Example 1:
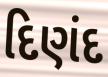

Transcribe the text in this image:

દિણંદ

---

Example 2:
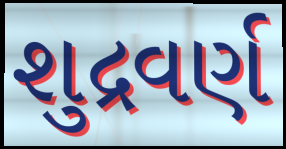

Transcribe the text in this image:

શુદ્રવર્ણ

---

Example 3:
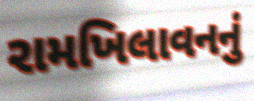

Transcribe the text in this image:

રામખિલાવનનું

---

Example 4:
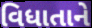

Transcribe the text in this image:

વિધાતાને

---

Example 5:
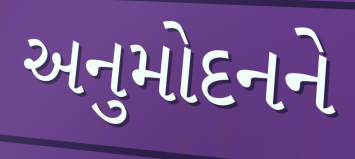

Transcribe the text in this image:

અનુમોદનને